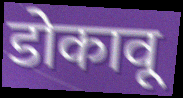
डोकावू